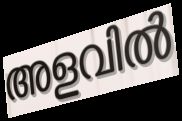
അളവിൽ